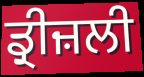
ਡ੍ਰੀਜ਼ਲੀ